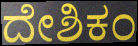
ದೇಶಿಕಂ